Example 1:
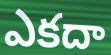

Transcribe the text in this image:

ఎకదా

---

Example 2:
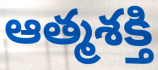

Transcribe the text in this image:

ఆత్మశక్తి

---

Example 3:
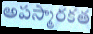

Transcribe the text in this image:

అపస్మారకత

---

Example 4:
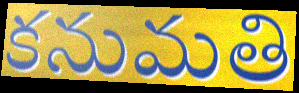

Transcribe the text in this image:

కనుమతి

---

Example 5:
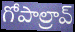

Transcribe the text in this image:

గోపాల్రావ్